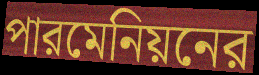
পারমেনিয়নের